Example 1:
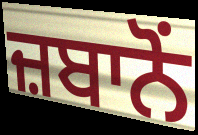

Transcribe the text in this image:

ਜ਼ਬਾਨੋਂ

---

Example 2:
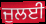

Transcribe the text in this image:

ਜੁਲਈ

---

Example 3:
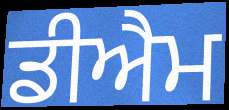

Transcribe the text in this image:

ਡੀਐਮ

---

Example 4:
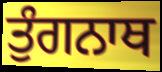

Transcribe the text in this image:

ਤੁੰਗਨਾਥ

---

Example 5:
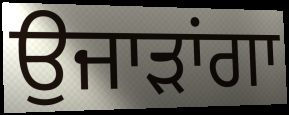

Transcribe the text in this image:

ਉਜਾੜਾਂਗਾ